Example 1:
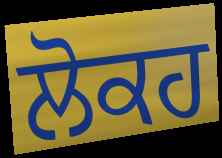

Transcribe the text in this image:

ਲੋਕਹ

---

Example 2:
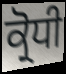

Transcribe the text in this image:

ਕ੍ਰੋਧੀ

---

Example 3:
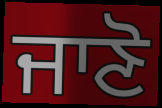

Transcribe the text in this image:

ਜਾਣੋ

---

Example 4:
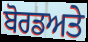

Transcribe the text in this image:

ਬੋਰਡਅਤੇ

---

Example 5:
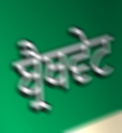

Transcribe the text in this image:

ਬ੍ਰੈਥਵੇਟ